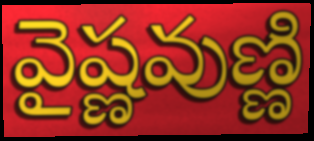
వైష్ణవుణ్ణి